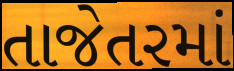
તાજેતરમાં